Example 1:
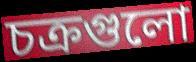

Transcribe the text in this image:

চক্রগুলো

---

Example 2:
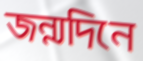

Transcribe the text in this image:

জন্মদিনে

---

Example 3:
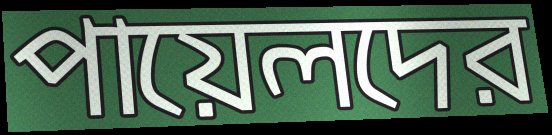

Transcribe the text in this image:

পায়েলদের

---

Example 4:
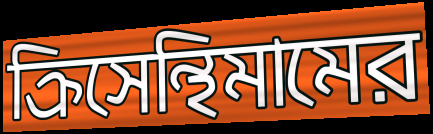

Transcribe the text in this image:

ক্রিসেন্থিমামের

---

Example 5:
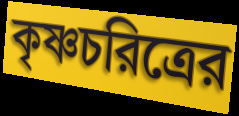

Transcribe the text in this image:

কৃষ্ণচরিত্রের